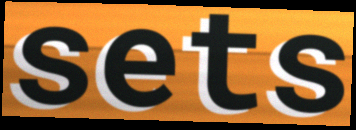
sets